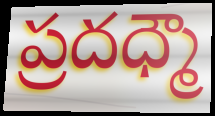
ప్రదధ్మౌ